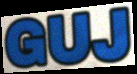
GUJ